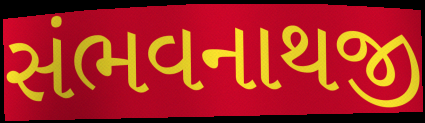
સંભવનાથજી